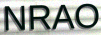
NRAO